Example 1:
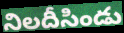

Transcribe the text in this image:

నిలదీసిండు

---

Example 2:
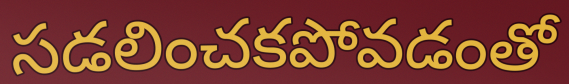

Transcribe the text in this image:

సడలించకపోవడంతో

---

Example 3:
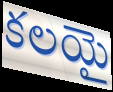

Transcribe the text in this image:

కలయై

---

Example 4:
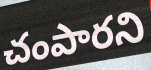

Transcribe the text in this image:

చంపారని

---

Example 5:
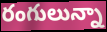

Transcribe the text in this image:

రంగులున్నా